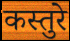
कस्तुरे